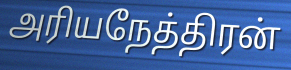
அரியநேத்திரன்